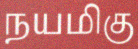
நயமிகு